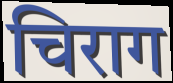
चिराग